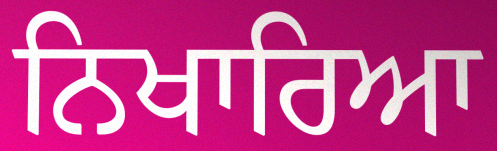
ਨਿਖਾਰਿਆ